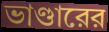
ভাণ্ডারের